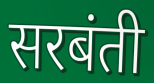
सरबंती